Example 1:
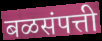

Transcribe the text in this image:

बळसंपत्ती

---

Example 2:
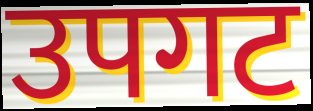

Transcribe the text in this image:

उपगट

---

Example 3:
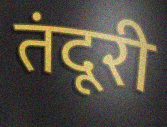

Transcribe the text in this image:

तंदूरी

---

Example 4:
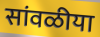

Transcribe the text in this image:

सांवळीया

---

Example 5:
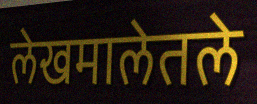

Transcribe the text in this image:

लेखमालेतले